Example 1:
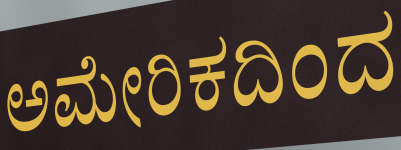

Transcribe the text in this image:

ಅಮೇರಿಕದಿಂದ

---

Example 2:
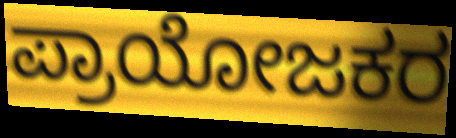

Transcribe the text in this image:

ಪ್ರಾಯೋಜಕರ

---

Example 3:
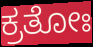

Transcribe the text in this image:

ಕ್ರತೋಃ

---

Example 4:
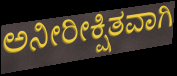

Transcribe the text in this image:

ಅನೀರೀಕ್ಷಿತವಾಗಿ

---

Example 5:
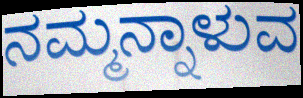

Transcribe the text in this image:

ನಮ್ಮನ್ನಾಳುವ